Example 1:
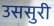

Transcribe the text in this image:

उससुरी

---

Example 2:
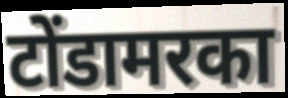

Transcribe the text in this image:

टोंडामरका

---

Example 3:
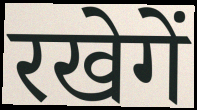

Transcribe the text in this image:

रखेगें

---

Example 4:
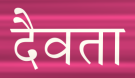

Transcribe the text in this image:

दैवता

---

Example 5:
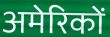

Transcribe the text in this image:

अमेरिकों